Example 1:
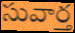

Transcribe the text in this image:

సువార్త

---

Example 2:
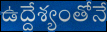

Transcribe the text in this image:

ఉద్దేశ్యంతోనే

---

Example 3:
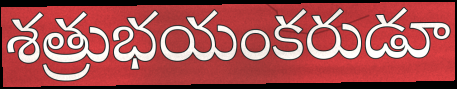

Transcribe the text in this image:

శత్రుభయంకరుడూ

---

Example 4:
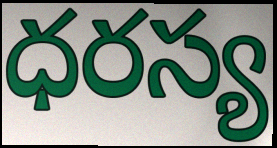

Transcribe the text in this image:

ధరస్య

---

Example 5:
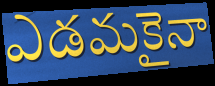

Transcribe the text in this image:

ఎడమకైనా